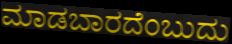
ಮಾಡಬಾರದೆಂಬುದು